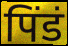
पिंडं